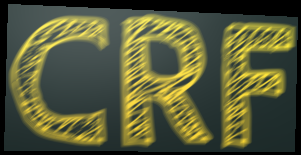
CRF